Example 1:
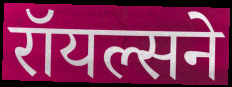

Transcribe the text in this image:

रॉयल्सने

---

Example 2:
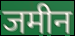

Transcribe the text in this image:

जमीन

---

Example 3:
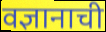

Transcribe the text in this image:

वज्ञानाची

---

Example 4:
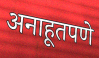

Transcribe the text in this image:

अनाहूतपणे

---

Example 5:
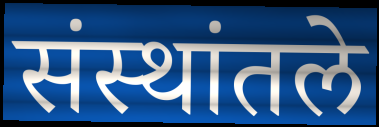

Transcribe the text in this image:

संस्थांतले